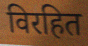
विरहित